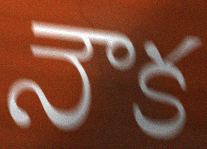
నౌక